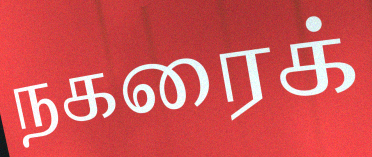
நகரைக்